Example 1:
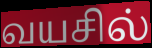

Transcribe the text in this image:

வயசில்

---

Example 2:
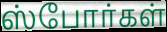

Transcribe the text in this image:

ஸ்போர்கள்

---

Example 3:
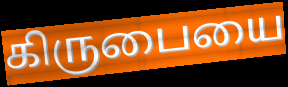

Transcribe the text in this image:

கிருபையை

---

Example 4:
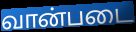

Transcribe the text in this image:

வான்படை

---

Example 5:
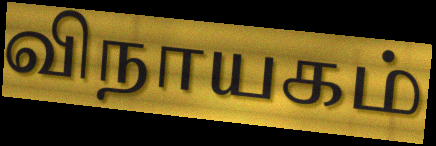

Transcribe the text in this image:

விநாயகம்